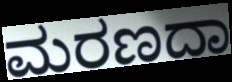
ಮರಣದಾ